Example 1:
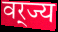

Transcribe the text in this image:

वर्ज्य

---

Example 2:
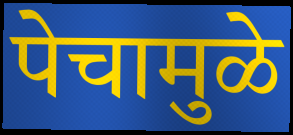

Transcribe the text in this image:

पेचामुळे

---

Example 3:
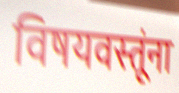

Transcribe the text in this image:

विषयवस्तूंना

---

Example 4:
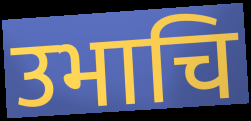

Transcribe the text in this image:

उभाचि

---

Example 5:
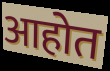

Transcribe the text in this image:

आहोत